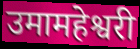
उमामहेश्वरी